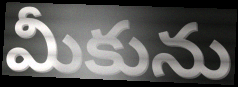
మీకును